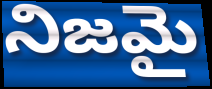
నిజమై